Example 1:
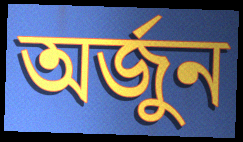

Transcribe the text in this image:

অৰ্জুন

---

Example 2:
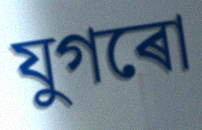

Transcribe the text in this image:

যুগৰো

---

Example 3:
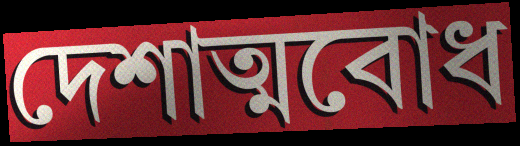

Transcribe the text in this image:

দেশাত্মবোধ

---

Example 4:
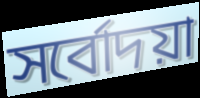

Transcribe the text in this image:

সৰ্বোদয়া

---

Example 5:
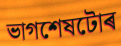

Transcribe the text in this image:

ভাগশেষটোৰ